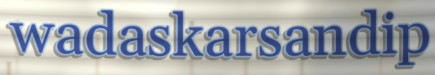
wadaskarsandip